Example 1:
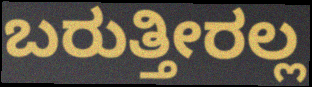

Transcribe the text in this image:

ಬರುತ್ತೀರಲ್ಲ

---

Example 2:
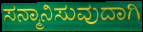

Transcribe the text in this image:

ಸನ್ಮಾನಿಸುವುದಾಗಿ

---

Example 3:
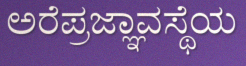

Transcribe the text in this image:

ಅರೆಪ್ರಜ್ಞಾವಸ್ಥೆಯ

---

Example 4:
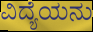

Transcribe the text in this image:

ವಿದ್ಯೆಯನು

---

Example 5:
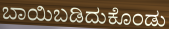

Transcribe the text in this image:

ಬಾಯಿಬಡಿದುಕೊಂಡು